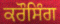
ਕਰੌਸਿੰਗ